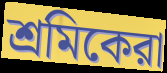
শ্রমিকেরা